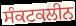
ਸੰਕਟਕਲੀਨ